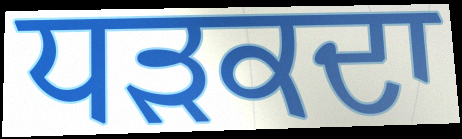
ਧੜਕਦਾ